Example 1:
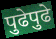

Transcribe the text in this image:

पुढेपुढे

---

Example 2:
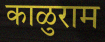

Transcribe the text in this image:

काळुराम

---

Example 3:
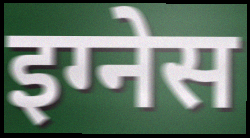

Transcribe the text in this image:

इग्नेस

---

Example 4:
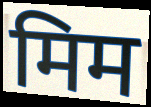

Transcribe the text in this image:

मिम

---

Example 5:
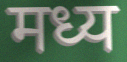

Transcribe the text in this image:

मध्य